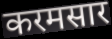
करमसार